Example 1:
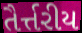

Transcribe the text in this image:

તૈર્ત્તરીય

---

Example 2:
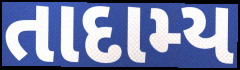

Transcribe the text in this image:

તાદામ્ય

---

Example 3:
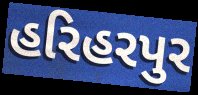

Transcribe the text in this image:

હરિહરપુર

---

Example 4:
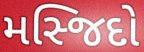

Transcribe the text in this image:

મસ્જિદો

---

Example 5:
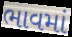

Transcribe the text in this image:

ભાવમાં